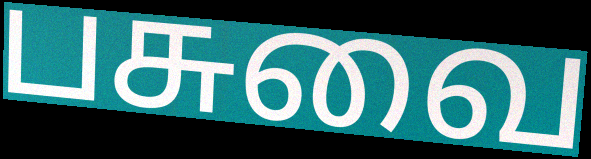
பசுவை